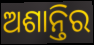
ଅଶାନ୍ତିର